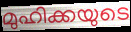
മുഹിക്കയുടെ